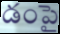
డంపై